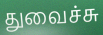
துவைச்சு